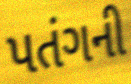
પતંગની